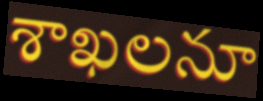
శాఖలనూ